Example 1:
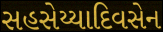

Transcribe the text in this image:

સહસેય્યાદિવસેન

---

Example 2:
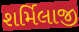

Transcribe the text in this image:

શર્મિલાજી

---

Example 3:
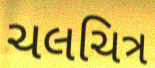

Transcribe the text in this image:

ચલચિત્ર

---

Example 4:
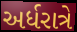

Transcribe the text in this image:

અર્ધરાત્રે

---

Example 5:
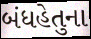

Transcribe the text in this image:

બંધહેતુના